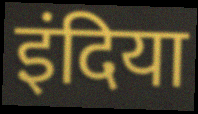
इंदिया